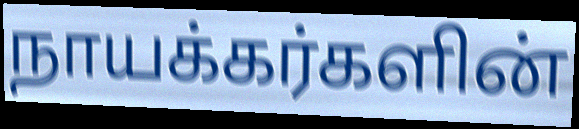
நாயக்கர்களின்